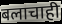
बलाचाही